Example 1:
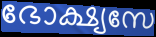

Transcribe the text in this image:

ഭോക്ഷ്യസേ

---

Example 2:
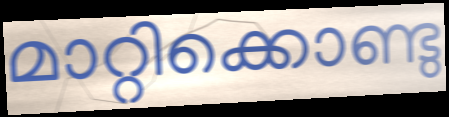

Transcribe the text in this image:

മാറ്റിക്കൊണ്ടു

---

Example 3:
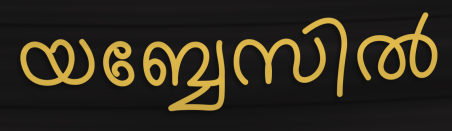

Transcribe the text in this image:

യബ്ബേസിൽ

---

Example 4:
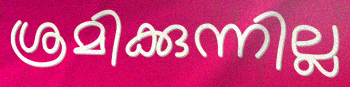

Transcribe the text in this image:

ശ്രമിക്കുന്നില്ല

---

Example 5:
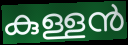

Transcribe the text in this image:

കുള്ളൻ